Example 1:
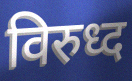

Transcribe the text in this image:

विरुध्द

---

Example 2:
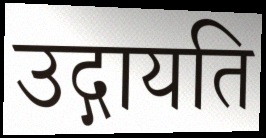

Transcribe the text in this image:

उद्गायति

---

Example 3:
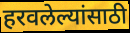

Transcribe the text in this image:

हरवलेल्यांसाठी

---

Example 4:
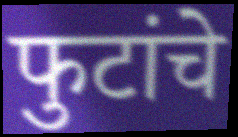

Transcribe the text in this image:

फुटांचे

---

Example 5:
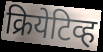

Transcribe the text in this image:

क्रियेटिव्ह